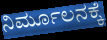
ನಿರ್ಮೂಲನಕ್ಕೆ